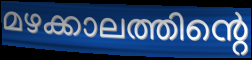
മഴക്കാലത്തിന്റെ